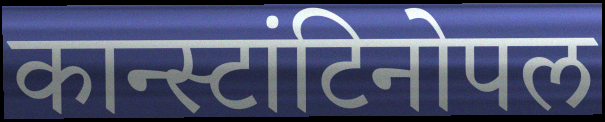
कान्स्टांटिनोपल